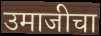
उमाजीचा